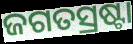
ଜଗତସ୍ରଷ୍ଟା